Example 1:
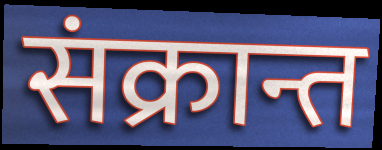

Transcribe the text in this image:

संक्रान्त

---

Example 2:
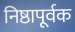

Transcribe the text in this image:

निष्ठापूर्वक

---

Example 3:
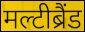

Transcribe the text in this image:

मल्टीब्रैंड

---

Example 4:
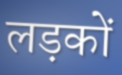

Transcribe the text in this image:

लड़कों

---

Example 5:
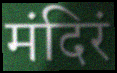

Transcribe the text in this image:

मंदिरं